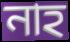
নাহ